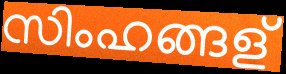
സിംഹങ്ങള്